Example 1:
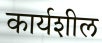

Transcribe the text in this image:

कार्यशील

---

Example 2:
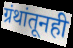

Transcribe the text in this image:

ग्रंथांतूनही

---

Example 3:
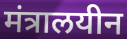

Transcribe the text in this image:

मंत्रालयीन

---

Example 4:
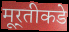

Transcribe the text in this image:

मूर्तीकडे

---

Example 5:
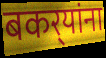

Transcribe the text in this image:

बकर्‍यांना